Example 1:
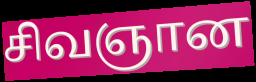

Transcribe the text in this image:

சிவஞான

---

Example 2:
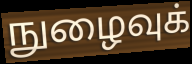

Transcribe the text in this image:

நுழைவுக்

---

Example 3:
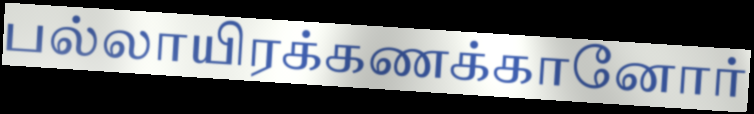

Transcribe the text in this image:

பல்லாயிரக்கணக்கானோர்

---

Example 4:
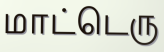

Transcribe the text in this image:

மாட்டெரு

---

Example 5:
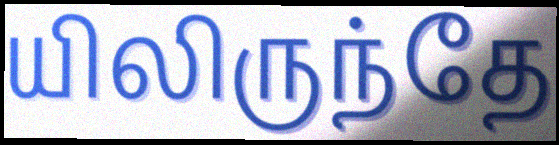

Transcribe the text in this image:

யிலிருந்தே